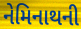
નેમિનાથની